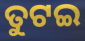
ତୁଟଇ